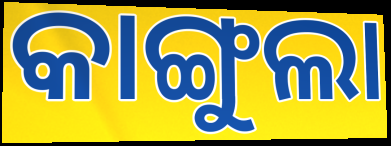
କାଙ୍ଗୁଲା